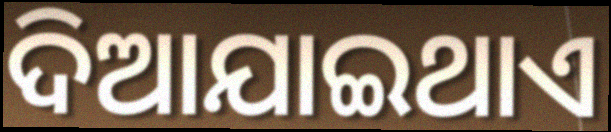
ଦିଆଯାଇଥାଏ